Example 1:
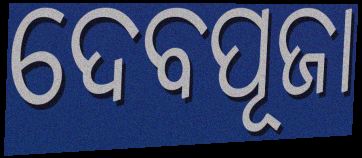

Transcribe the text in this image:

ଦେବପୂଜା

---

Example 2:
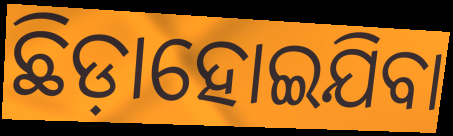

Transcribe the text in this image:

ଛିଡ଼ାହୋଇଯିବା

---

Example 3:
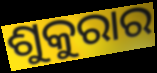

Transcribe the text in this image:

ଶୁକୁରାର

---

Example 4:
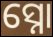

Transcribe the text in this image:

ସ୍ନୋ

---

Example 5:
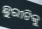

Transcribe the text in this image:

ଛୁରୀଟିକୁ